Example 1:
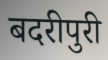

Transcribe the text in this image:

बदरीपुरी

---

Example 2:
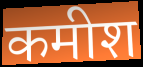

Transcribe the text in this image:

कमीश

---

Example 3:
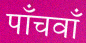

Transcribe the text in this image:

पाँचवाँ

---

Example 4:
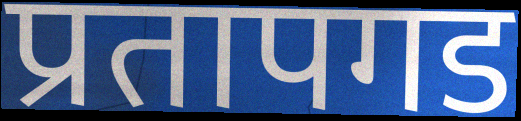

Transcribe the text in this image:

प्रतापगड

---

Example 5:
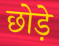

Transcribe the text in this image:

छोड़े